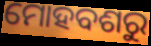
ମୋହବଶରୁ